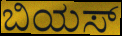
ಬಿಯಸ್